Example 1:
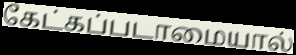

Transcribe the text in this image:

கேட்கப்படாமையால்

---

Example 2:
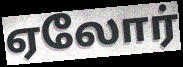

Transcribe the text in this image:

ஏலோர்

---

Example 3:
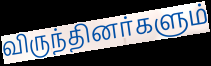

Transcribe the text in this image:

விருந்தினர்களும்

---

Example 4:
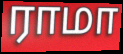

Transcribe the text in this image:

ராமா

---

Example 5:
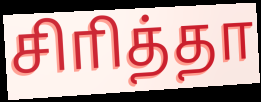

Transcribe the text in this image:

சிரித்தா